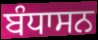
ਬੰਧਾਸਨ